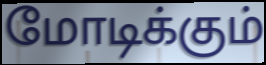
மோடிக்கும்